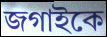
জগাইকে